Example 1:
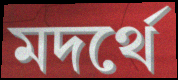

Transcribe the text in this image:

মদর্থে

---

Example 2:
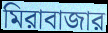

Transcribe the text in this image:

মিরাবাজার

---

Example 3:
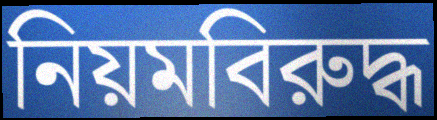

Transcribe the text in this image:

নিয়মবিরুদ্ধ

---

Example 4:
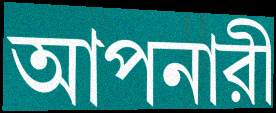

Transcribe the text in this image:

আপনারী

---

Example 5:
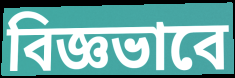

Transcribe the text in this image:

বিজ্ঞভাবে